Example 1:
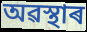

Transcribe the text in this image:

অৱস্থাৰ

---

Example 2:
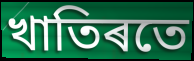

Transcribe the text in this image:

খাতিৰতে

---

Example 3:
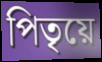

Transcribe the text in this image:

পিতৃয়ে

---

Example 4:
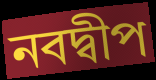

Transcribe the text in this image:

নবদ্বীপ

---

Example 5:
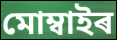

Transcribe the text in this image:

মোম্বাইৰ